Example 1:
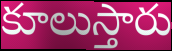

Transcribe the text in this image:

కూలుస్తారు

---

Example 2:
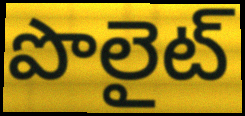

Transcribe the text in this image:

పొలైట్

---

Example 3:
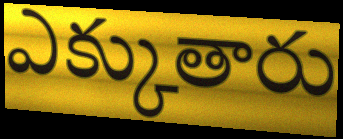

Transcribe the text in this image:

ఎక్కుతారు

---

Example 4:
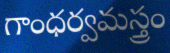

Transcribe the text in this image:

గాంధర్వమస్త్రం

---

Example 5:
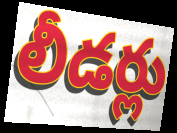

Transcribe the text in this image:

లీడర్లు